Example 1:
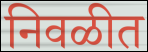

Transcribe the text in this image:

निवळीत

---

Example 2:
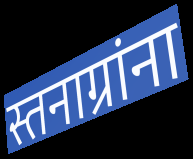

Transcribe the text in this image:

स्तनाग्रांना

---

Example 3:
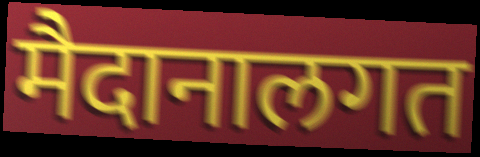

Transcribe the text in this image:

मैदानालगत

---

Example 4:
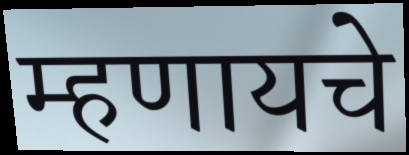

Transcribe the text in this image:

म्हणायचे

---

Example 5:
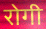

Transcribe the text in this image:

रोगी